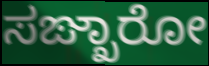
ಸಙ್ಖಾರೋ